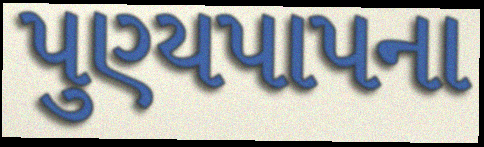
પુણ્યપાપના